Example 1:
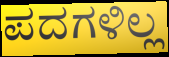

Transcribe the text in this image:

ಪದಗಳಿಲ್ಲ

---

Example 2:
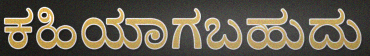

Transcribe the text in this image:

ಕಹಿಯಾಗಬಹುದು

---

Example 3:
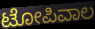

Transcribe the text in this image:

ಟೋಪಿವಾಲ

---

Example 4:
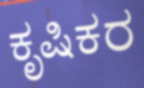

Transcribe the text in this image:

ಕೃಷಿಕರ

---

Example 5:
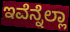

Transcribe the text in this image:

ಇವೆನ್ನೆಲ್ಲಾ